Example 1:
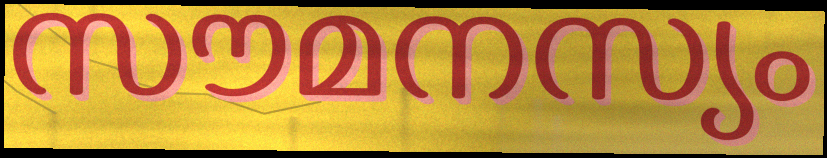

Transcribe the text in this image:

സൗമനസ്യം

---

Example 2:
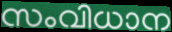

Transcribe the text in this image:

സംവിധാന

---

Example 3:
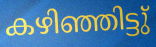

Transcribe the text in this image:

കഴിഞ്ഞിട്ടു്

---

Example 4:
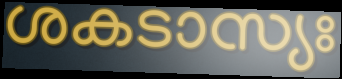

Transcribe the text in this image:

ശകടാസ്യഃ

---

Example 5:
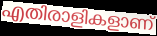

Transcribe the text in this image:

എതിരാളികളാണ്